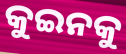
କୁଇନକୁ